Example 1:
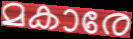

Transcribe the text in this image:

മകാരേ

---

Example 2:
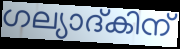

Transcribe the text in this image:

ഗല്യാദ്കിന്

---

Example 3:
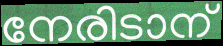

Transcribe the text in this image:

നേരിടാന്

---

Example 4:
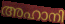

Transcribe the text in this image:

അഹാനി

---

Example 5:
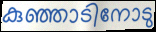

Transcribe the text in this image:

കുഞ്ഞാടിനോടു